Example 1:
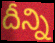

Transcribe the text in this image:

దీన్ని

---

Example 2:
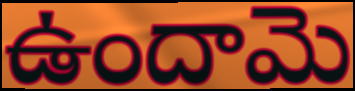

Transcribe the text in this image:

ఉందామె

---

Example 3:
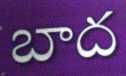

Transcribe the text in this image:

బాద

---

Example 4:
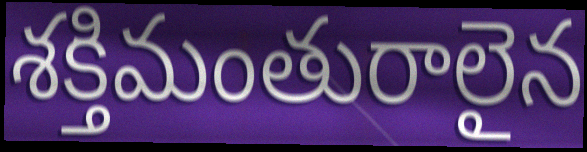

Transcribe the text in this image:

శక్తిమంతురాలైన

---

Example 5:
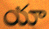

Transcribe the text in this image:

యా